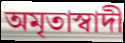
অমৃতাস্বাদী